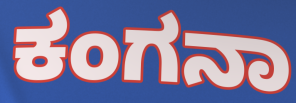
ಕಂಗನಾ